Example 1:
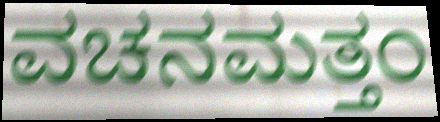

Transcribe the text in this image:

ವಚನಮತ್ತಂ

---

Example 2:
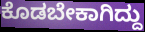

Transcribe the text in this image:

ಕೊಡಬೇಕಾಗಿದ್ದು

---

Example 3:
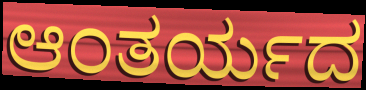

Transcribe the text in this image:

ಆಂತರ್ಯದ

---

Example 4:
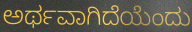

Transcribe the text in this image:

ಅರ್ಥವಾಗಿದೆಯೆಂದು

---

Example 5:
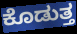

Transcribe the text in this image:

ಕೊಡುತ್ತ